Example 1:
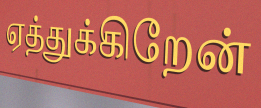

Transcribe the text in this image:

ஏத்துக்கிறேன்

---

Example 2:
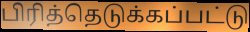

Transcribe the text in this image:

பிரித்தெடுக்கப்பட்டு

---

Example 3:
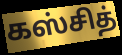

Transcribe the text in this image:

கஸ்சித்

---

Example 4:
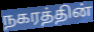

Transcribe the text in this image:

நகரத்தின்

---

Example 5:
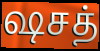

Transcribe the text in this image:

ஷசத்